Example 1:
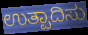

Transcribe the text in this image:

ಉತ್ಪಾದಿಸು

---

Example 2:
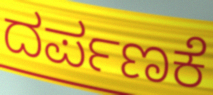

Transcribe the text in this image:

ದರ್ಪಣಕೆ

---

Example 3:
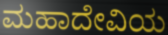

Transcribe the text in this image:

ಮಹಾದೇವಿಯ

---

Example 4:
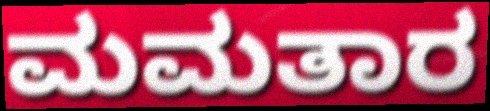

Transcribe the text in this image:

ಮಮತಾರ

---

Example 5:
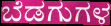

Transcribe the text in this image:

ಬೆಡಗುಗಳ